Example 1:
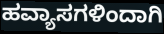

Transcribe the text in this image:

ಹವ್ಯಾಸಗಳಿಂದಾಗಿ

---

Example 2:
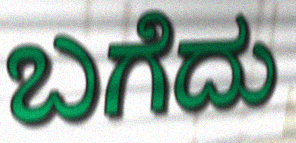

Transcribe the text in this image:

ಬಗೆದು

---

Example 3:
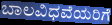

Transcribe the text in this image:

ಬಾಲವಿಧವೆಯರಿಗೆ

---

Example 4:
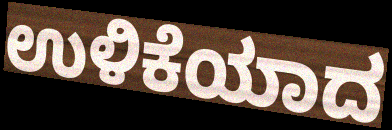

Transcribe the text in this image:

ಉಳಿಕೆಯಾದ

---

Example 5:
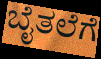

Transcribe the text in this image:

ಬೈತಲೆಗೆ